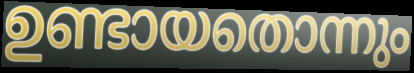
ഉണ്ടായതൊന്നും